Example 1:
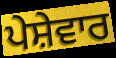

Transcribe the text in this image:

ਪੇਸ਼ੇਵਾਰ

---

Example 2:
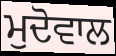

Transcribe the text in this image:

ਮੁਦੋਵਾਲ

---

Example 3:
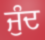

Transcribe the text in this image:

ਜੁੰਦ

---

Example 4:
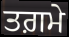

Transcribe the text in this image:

ਤਗ਼ਮੇ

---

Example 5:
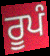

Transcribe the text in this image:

ਰੂਪੰ